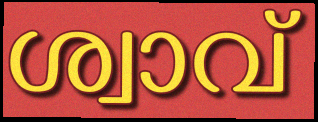
ശ്വാവ്